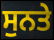
ਸੁਨਤੇ